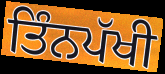
ਤਿੰਨਪੱਖੀ